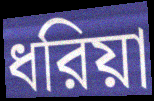
ধরিয়া